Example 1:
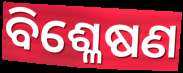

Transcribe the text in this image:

ବିଶ୍ଳେଷଣ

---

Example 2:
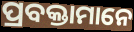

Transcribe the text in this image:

ପ୍ରବକ୍ତାମାନେ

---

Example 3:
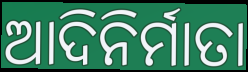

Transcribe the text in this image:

ଆଦିନିର୍ମାତା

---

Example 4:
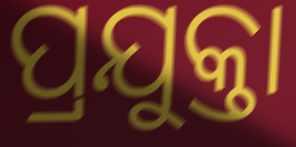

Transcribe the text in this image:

ପ୍ରଯୁକ୍ତା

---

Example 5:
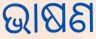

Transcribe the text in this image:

ଭାଷଣ